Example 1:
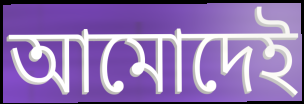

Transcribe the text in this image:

আমোদেই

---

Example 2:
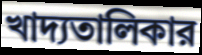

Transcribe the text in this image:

খাদ্যতালিকার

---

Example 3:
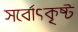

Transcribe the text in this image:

সর্বোৎকৃষ্ট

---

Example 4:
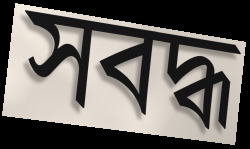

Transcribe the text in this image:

সবদ্ধ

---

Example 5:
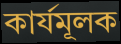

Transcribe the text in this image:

কার্যমূলক